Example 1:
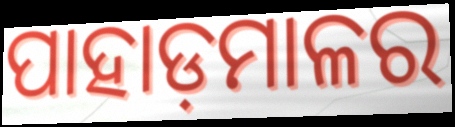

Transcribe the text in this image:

ପାହାଡ଼ମାଳର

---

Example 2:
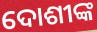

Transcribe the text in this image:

ଦୋଶୀଙ୍କ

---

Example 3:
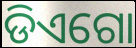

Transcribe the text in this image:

ଡିଏଗୋ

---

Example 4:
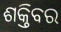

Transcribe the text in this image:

ଶକ୍ତିବର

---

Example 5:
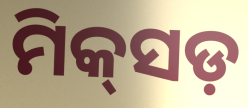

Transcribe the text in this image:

ମିକ୍‌ସଡ଼